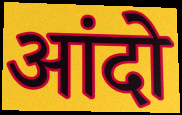
आंदो